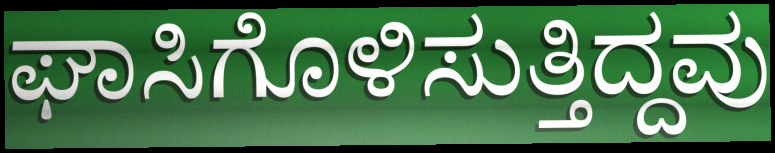
ಘಾಸಿಗೊಳಿಸುತ್ತಿದ್ದವು